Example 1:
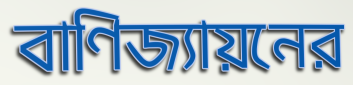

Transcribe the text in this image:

বাণিজ্যায়নের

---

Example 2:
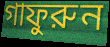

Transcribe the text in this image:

গাফুরুন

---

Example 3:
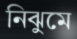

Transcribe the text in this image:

নিঝুমে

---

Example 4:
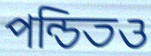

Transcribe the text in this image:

পন্ডিতও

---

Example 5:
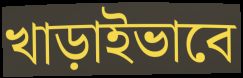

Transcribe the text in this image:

খাড়াইভাবে